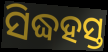
ସିଦ୍ଧହସ୍ତ